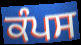
ਕੰਪਸ